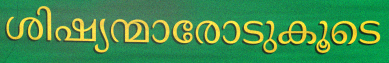
ശിഷ്യന്മാരോടുകൂടെ